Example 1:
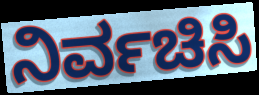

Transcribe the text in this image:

ನಿರ್ವಚಿಸಿ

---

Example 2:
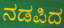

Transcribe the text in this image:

ನಡಪಿದ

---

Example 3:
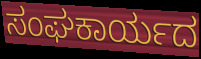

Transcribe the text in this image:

ಸಂಘಕಾರ್ಯದ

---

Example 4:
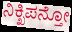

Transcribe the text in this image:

ನಿಕ್ಖಿಪನ್ತೋ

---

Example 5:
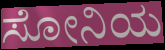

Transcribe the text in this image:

ಸೋನಿಯ